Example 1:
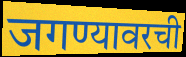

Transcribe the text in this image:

जगण्यावरची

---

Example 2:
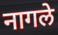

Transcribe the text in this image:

नागले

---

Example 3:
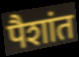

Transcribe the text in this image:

पैशांत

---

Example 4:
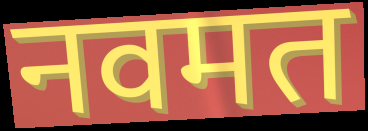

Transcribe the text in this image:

नवमत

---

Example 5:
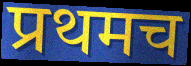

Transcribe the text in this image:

प्रथमच